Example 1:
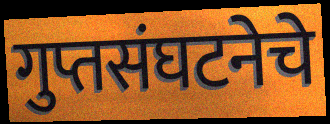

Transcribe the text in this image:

गुप्तसंघटनेचे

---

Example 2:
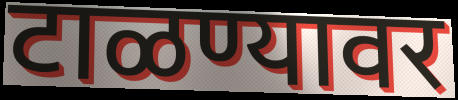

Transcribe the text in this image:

टाळण्यावर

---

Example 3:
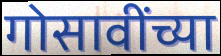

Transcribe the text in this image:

गोसावींच्या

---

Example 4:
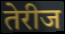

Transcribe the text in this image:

तेरीज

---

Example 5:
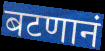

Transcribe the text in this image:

बटणानं